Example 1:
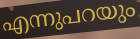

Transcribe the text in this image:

എന്നുപറയും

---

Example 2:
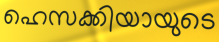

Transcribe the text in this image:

ഹെസക്കിയായുടെ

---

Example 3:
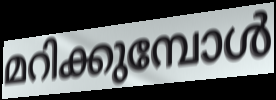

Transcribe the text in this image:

മറിക്കുമ്പോൾ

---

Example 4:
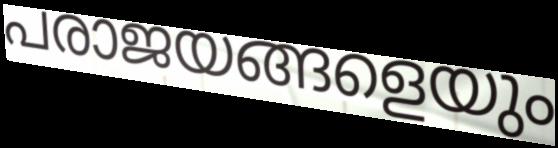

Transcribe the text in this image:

പരാജയങ്ങളെയും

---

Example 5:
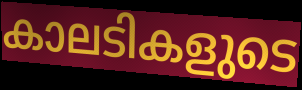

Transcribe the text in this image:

കാലടികളുടെ